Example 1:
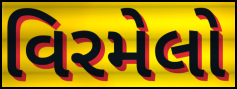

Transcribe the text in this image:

વિરમેલો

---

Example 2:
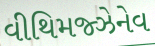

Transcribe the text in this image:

વીથિમજ્ઝેનેવ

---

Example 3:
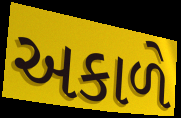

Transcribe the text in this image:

અકાળે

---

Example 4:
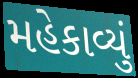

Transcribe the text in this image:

મહેકાવ્યું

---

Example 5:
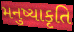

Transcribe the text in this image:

મનુષ્યાકૃતિ